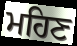
ਮਹਿਣ